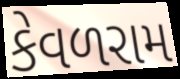
કેવળરામ